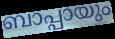
ബാപ്പായും